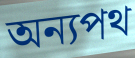
অন্যপথ